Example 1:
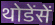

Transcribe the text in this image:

थोडेंसें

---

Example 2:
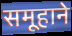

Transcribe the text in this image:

समूहाने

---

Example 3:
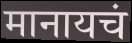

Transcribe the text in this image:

मानायचं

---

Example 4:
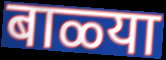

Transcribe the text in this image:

बाळ्या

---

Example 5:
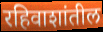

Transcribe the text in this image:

रहिवाशांतील